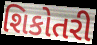
શિકોતરી